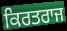
ਕਿਰਤਰਾਜ